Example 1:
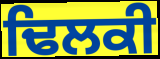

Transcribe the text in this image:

ਢਿਲਕੀ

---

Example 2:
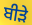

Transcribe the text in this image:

ਬੀੜੇ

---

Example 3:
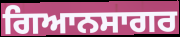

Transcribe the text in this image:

ਗਿਆਨਸਾਗਰ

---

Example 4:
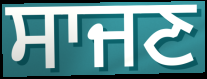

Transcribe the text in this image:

ਸਾਜਣ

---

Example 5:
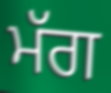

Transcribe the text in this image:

ਮੱਗ